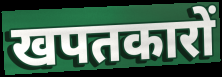
खपतकारों